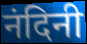
नंदिनी